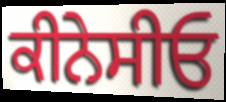
ਕੀਨੇਸੀਓ